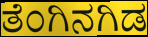
ತೆಂಗಿನಗಿಡ